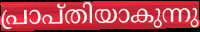
പ്രാപ്തിയാകുന്നു